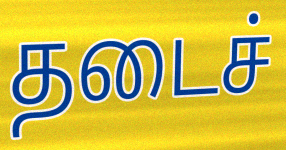
தடைச்